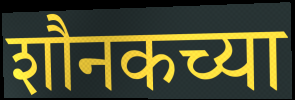
शौनकच्या